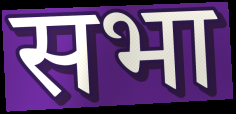
सभा